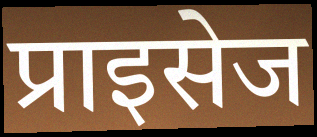
प्राइसेज